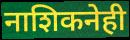
नाशिकनेही